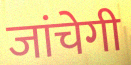
जांचेगी